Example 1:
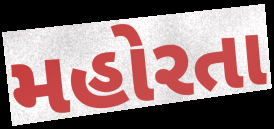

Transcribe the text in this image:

મહોરતા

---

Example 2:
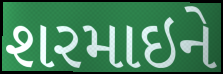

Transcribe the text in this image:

શરમાઇને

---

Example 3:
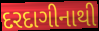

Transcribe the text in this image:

દરદાગીનાથી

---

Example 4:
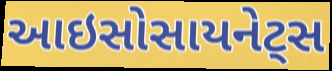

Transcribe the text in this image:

આઇસોસાયનેટ્સ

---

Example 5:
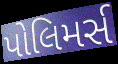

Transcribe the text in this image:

પોલિમર્સ